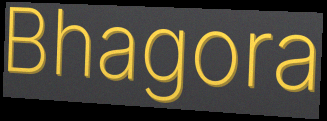
Bhagora